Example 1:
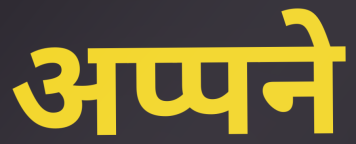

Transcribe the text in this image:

अप्पने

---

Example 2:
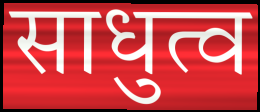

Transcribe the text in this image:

साधुत्व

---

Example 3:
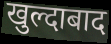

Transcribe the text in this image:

खुल्दाबाद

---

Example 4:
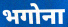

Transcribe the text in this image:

भगोना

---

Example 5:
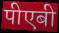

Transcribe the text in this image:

पीएबी